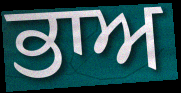
ਭਾਅ